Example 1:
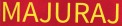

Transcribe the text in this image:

MAJURAJ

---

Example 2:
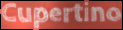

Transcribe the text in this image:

Cupertino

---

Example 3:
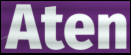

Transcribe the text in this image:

Aten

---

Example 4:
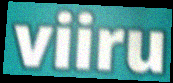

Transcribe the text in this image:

viiru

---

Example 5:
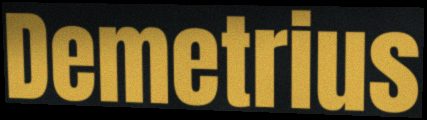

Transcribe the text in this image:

Demetrius